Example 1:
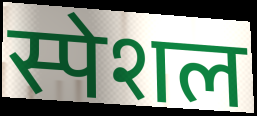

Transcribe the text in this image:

स्पेशल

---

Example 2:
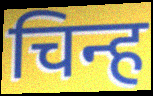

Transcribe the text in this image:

चिन्ह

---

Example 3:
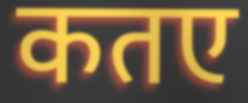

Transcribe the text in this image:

कतए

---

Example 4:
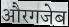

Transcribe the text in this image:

औरगजेब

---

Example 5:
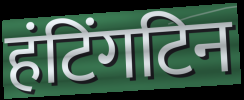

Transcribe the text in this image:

हंटिंगटिन